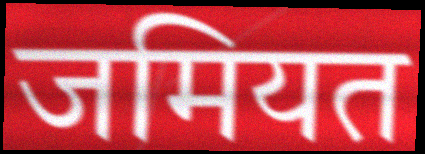
जमियत